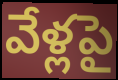
వేళ్లపై